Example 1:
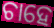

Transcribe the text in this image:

ଚାହେ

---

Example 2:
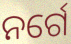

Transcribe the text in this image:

ନର୍ଗେ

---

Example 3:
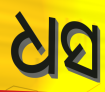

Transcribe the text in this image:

ଧସ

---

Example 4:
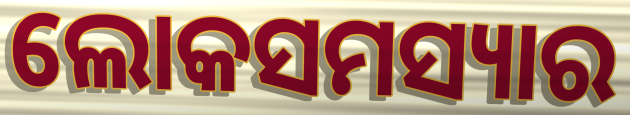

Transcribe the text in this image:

ଲୋକସମସ୍ୟାର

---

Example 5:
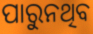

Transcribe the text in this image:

ପାରୁନଥିବ